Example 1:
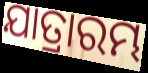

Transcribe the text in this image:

ଯାତ୍ରାରମ୍ଭ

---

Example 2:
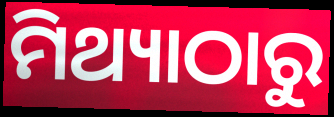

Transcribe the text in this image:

ମିଥ୍ୟାଠାରୁ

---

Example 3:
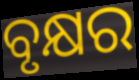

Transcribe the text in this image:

ବୃକ୍ଷର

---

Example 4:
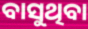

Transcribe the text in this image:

ବାସୁଥିବା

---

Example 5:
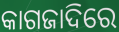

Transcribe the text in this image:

କାଗଜାଦିରେ